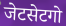
जेटसेटगो